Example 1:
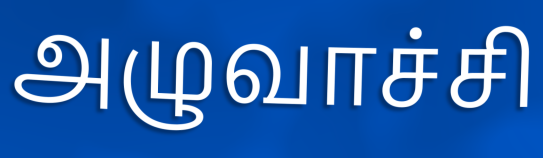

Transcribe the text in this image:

அழுவாச்சி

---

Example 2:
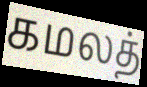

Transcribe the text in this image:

கமலத்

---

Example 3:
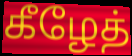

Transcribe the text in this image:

கீழேத்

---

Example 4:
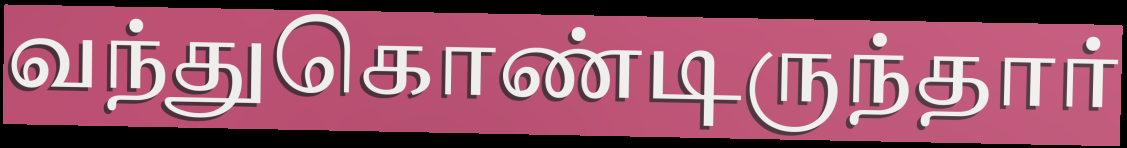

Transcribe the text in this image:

வந்துகொண்டிருந்தார்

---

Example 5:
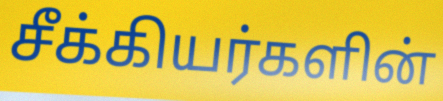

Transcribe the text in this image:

சீக்கியர்களின்